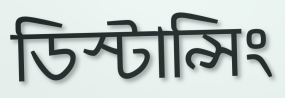
ডিস্টান্সিং